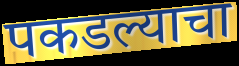
पकडल्याचा